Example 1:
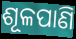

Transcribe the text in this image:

ଶୂଳପାଣି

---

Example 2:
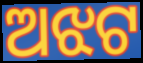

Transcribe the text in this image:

ଅଝଟ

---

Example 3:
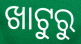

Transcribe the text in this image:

ଖାଟୁରୁ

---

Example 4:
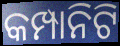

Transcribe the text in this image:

କମ୍ପାନିଟି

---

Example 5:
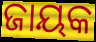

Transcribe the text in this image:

ଜାୟକ